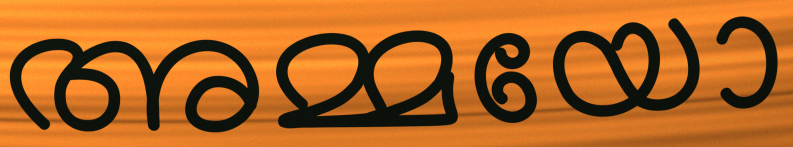
അമ്മയോ